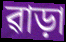
ৱাড়া